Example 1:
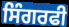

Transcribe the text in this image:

ਸਿੰਗਰਫੀ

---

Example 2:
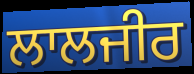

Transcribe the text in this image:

ਲਾਲਜੀਰ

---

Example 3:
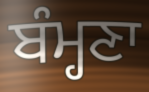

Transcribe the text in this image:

ਬੰਮ੍ਹਣਾ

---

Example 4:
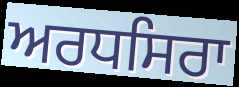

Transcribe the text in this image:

ਅਰਧਸਿਰਾ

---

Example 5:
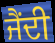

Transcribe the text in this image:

ਜੈਂਦੀ